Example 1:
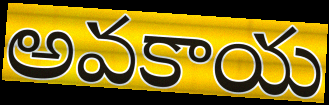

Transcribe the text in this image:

అవకాయ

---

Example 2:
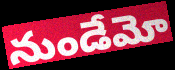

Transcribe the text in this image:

నుండేమో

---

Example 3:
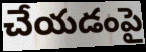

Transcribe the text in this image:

చేయడంపై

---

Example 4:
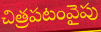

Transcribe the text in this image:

చిత్రపటంవైపు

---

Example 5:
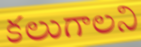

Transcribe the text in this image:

కలుగాలని